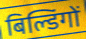
बिल्डिंगों